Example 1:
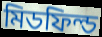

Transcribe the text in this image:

মিডফিল্ড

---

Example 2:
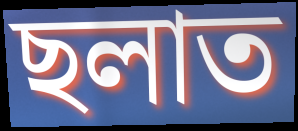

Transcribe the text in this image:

ছলাত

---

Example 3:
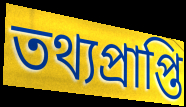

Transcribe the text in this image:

তথ্যপ্রাপ্তি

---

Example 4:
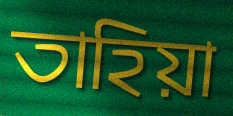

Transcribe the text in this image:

তাহিয়া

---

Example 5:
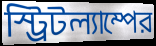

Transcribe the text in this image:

স্ট্রিটল্যাম্পের